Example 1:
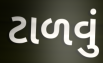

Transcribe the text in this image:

ટાળવું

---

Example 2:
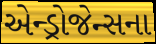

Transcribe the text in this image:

એન્ડ્રોજેન્સના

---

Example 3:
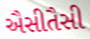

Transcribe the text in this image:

ઐસીતૈસી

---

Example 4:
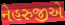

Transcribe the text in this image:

નેહરુજીએ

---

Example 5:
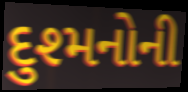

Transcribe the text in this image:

દુશ્મનોની